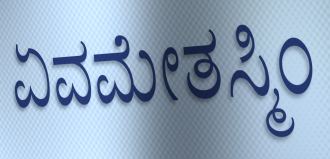
ಏವಮೇತಸ್ಮಿಂ